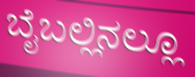
ಬೈಬಲ್ಲಿನಲ್ಲೂ